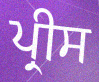
ਪ੍ਰੀਸ